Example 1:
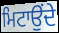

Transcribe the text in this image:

ਮਿਟਾਉਂਦੇ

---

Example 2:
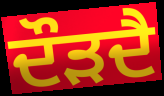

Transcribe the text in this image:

ਦੌੜਦੈ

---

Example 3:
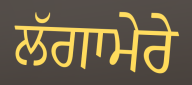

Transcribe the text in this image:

ਲੱਗਾਮੇਰੇ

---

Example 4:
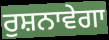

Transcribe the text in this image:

ਰੁਸ਼ਨਾਵੇਗਾ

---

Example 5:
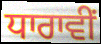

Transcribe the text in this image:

ਧਾਰਾਵੀਂ